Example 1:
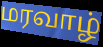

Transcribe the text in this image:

மரவாழ்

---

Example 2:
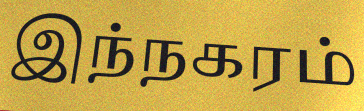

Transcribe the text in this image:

இந்நகரம்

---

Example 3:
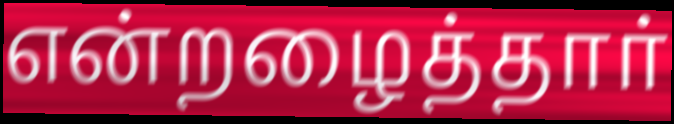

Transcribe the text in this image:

என்றழைத்தார்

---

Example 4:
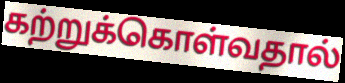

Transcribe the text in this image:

கற்றுக்கொள்வதால்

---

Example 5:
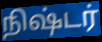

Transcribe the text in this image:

நிஷ்டர்